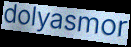
dolyasmor